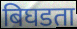
बिघडता